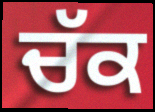
ਚੱਕ